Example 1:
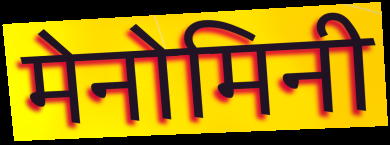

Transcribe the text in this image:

मेनोमिनी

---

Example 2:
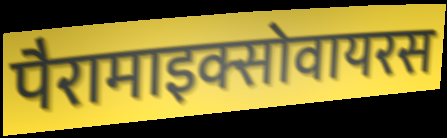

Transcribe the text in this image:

पैरामाइक्सोवायरस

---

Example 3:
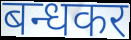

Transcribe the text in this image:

बन्धकर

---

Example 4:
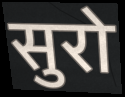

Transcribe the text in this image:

सुरो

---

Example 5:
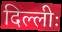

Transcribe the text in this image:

दिल्लीः